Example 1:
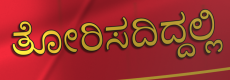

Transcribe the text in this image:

ತೋರಿಸದಿದ್ದಲ್ಲಿ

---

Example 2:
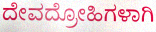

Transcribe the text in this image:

ದೇವದ್ರೋಹಿಗಳಾಗಿ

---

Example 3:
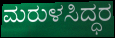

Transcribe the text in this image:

ಮರುಳಸಿದ್ಧರ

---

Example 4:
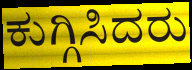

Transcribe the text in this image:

ಕುಗ್ಗಿಸಿದರು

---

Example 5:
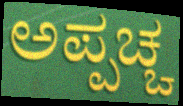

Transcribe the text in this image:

ಅಪ್ಪಚ್ಚ